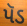
પૅડ